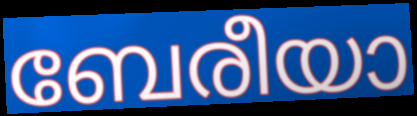
ബേരീയാ